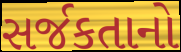
સર્જકતાનો